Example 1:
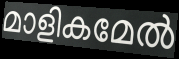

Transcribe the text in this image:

മാളികമേൽ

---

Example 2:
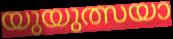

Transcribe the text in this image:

യുയുത്സയാ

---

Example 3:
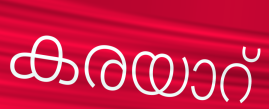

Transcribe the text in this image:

കരയാറ്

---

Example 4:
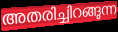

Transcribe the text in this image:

അതരിച്ചിറങ്ങുന്ന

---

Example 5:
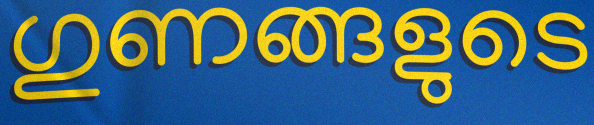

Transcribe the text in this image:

ഗുണങ്ങളുടെ